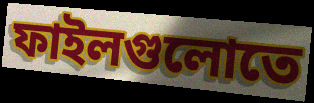
ফাইলগুলোতে